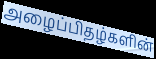
அழைப்பிதழ்களின்